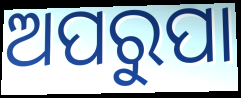
ଅପରୁପା